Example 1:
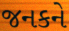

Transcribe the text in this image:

જનકને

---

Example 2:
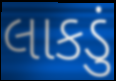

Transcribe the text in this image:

લાકડું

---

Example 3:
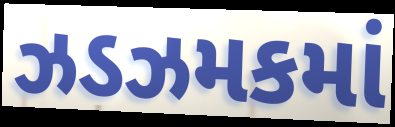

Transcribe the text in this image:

ઝડઝમકમાં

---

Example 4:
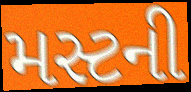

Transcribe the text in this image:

મસ્ટની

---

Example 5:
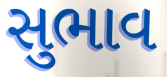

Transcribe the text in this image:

સુભાવ